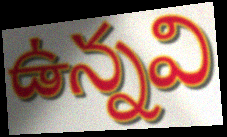
ఉన్నవి